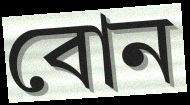
বোন